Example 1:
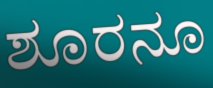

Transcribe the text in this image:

ಶೂರನೂ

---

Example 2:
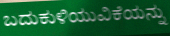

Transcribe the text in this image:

ಬದುಕುಳಿಯುವಿಕೆಯನ್ನು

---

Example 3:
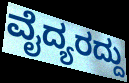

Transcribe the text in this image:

ವೈದ್ಯರದ್ದು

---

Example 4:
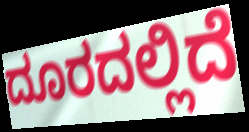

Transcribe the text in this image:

ದೂರದಲ್ಲಿದೆ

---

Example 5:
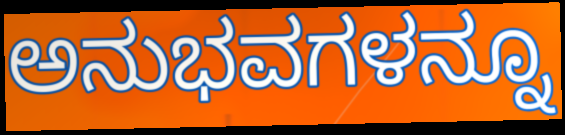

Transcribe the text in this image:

ಅನುಭವಗಳನ್ನೂ